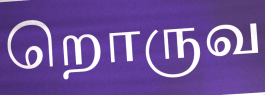
றொருவ